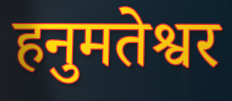
हनुमतेश्वर